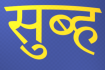
सुब्ह